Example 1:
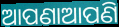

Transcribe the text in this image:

ଆପଣାଆପଣି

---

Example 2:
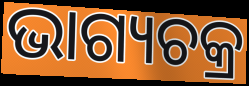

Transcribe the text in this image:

ଭାଗ୍ୟଚକ୍ର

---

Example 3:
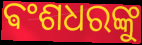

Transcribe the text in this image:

ଵଂଶଧରଙ୍କୁ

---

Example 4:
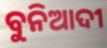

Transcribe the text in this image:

ବୁନିଆଦୀ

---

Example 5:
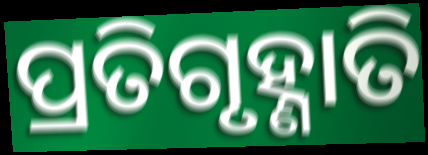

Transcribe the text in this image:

ପ୍ରତିଗୃହ୍ଣାତି